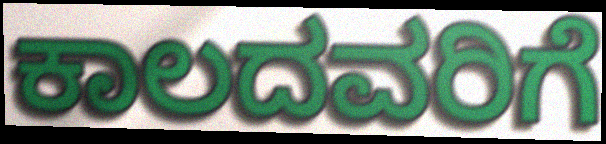
ಕಾಲದವರಿಗೆ